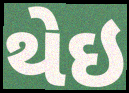
થેઇ